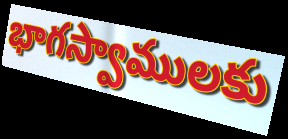
భాగస్వాములకు